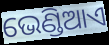
ଭେଣ୍ଡିଆଏ